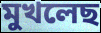
মুখলেছ